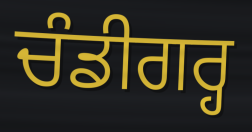
ਚੰਡੀਗਰ੍ਹ